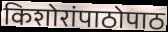
किशोरांपाठोपाठ